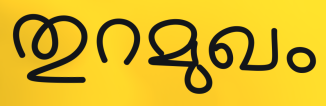
തുറമുഖം